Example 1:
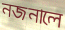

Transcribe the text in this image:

নজনালে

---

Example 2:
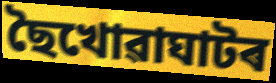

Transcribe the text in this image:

ছৈখোৱাঘাটৰ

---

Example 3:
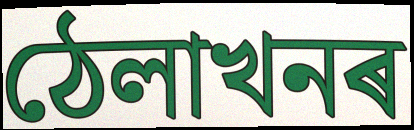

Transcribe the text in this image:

ঠেলাখনৰ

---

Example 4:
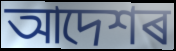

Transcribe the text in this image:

আদেশৰ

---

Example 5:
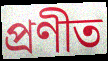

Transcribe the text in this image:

প্ৰণীত